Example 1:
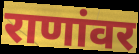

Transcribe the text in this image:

राणांवर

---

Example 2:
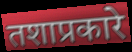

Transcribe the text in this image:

तशाप्रकारे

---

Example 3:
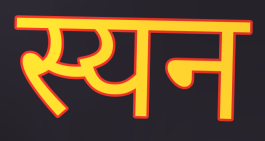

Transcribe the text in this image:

स्यन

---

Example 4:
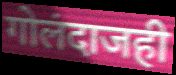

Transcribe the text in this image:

गोलंदाजही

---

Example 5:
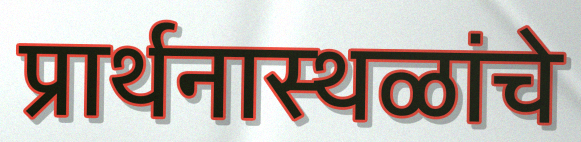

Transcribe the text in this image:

प्रार्थनास्थळांचे